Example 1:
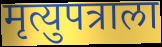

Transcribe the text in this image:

मृत्युपत्राला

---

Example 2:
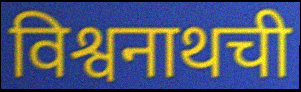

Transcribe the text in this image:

विश्वनाथची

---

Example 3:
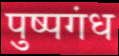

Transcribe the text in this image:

पुष्पगंध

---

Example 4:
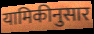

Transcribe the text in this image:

यामिकीनुसार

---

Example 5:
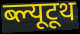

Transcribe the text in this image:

ब्ल्यूटूथ